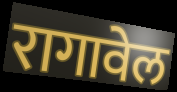
रागावेल